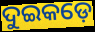
ଦୁଇକଡ଼େ